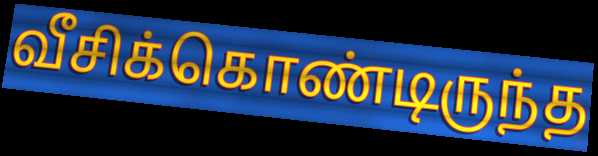
வீசிக்கொண்டிருந்த